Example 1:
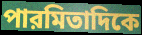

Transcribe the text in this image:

পারমিতাদিকে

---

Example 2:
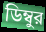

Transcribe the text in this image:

ডিম্বুর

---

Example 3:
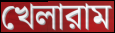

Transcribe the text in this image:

খেলারাম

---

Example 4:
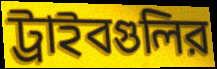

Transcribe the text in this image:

ট্রাইবগুলির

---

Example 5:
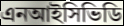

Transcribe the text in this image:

এনআইসিভিডি